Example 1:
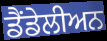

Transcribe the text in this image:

ਡੈਂਡੇਲੀਅਨ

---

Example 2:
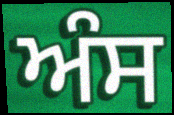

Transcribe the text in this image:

ਅੰਸ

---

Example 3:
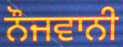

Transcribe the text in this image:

ਨੌਜਵਾਨੀ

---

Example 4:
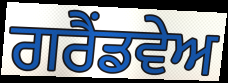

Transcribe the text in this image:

ਗਰੈਂਡਵੇਅ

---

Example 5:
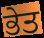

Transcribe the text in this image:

ਭੇਤ